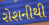
રોશનીથી